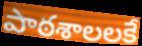
పాఠశాలలకే